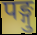
पङ्गु